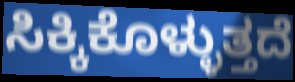
ಸಿಕ್ಕಿಕೊಳ್ಳುತ್ತದೆ